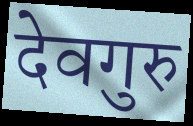
देवगुरु